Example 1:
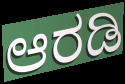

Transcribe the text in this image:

ಆರಡಿ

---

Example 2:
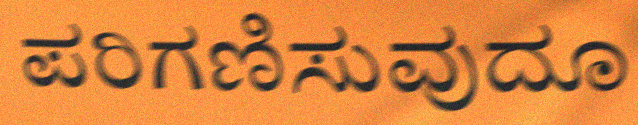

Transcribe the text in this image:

ಪರಿಗಣಿಸುವುದೂ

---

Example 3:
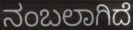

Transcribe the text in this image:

ನಂಬಲಾಗಿದೆ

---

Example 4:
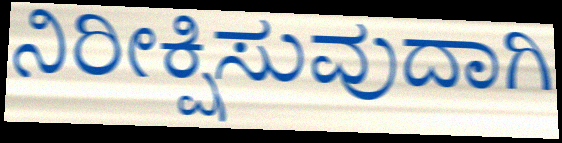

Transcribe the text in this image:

ನಿರೀಕ್ಷಿಸುವುದಾಗಿ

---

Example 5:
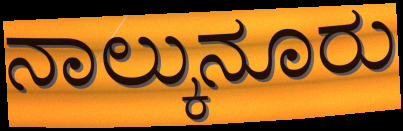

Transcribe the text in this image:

ನಾಲ್ಕುನೂರು